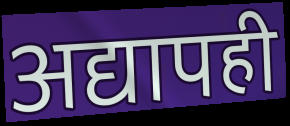
अद्यापही